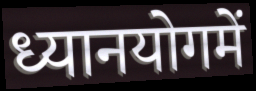
ध्यानयोगमें